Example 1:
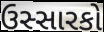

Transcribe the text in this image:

ઉસ્સારકો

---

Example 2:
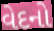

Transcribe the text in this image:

વેદનો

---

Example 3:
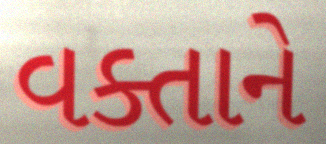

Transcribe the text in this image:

વક્તાને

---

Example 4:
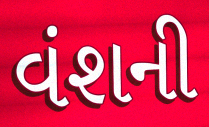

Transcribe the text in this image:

વંશની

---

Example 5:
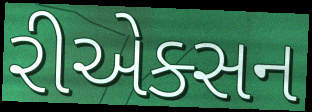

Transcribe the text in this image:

રીએક્સન